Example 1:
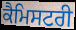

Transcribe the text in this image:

ਕੈਮਿਸਟਰੀ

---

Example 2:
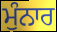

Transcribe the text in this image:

ਮੁੰਨਾਰ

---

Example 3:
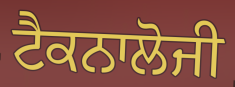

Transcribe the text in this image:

ਟੈਕਨਾਲੋਜੀ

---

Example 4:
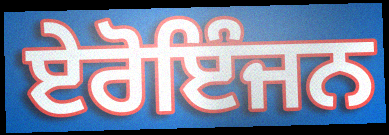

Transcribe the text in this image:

ਏਰੋਇੰਜਨ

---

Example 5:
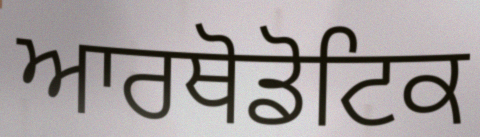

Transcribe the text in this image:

ਆਰਥੋਡੋਟਿਕ